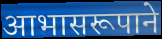
आभासरूपाने